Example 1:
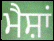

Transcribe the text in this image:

ਮੈਸ਼ਾਂ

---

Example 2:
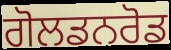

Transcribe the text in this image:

ਗੋਲਡਨਰੋਡ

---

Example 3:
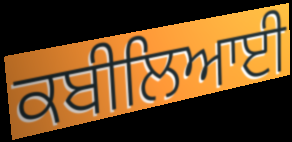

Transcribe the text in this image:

ਕਬੀਲਿਆਈ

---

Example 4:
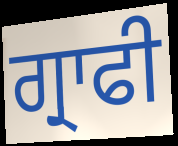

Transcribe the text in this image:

ਗ੍ਰਾਫੀ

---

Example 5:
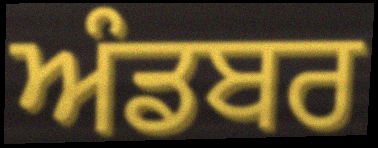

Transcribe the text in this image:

ਅੰਡਬਰ